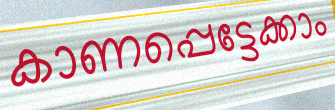
കാണപ്പെട്ടേക്കാം